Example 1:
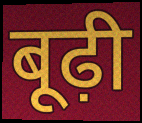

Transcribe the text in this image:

बूढ़ी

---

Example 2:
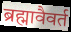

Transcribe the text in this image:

ब्रह्मावैवर्त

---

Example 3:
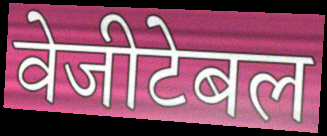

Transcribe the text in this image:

वेजीटेबल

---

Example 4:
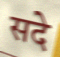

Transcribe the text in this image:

सदे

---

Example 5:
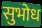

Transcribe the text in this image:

सुभोध